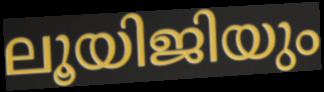
ലൂയിജിയും